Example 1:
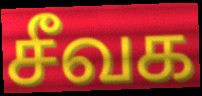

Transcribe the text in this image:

சீவக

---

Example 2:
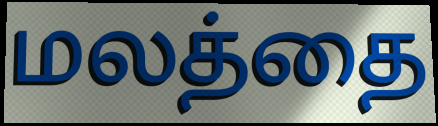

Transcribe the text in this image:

மலத்தை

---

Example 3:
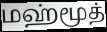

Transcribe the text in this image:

மஹ்மூத்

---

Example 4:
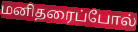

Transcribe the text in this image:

மனிதரைப்போல்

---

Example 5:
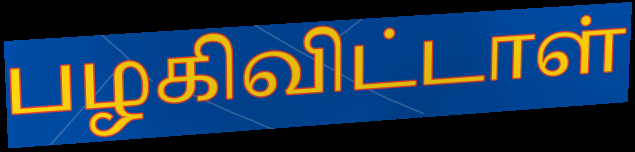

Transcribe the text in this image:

பழகிவிட்டாள்